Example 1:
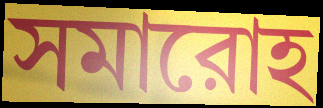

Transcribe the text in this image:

সমারোহ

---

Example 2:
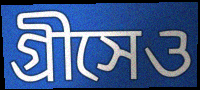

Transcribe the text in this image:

গ্রীসেও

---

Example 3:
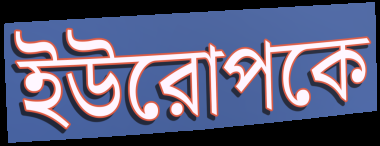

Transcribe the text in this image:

ইউরোপকে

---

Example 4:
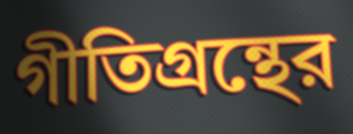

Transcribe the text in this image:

গীতিগ্রন্থের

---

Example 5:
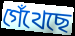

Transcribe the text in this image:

গেঁথেছে